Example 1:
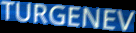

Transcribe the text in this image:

TURGENEV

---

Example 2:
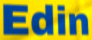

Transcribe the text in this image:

Edin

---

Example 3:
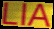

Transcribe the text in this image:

LIA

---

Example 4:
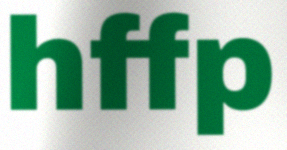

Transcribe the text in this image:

hffp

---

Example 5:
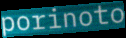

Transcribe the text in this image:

porinoto